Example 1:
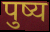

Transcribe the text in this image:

पुष्य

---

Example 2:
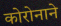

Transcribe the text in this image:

कोरोनाने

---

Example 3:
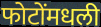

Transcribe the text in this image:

फोटोंमधली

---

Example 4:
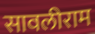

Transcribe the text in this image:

सावलीराम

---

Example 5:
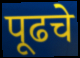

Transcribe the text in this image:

पूढचे